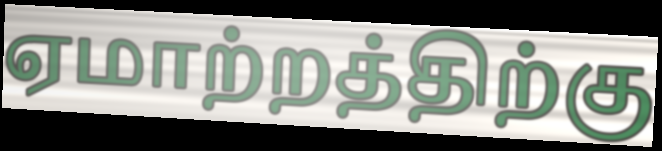
ஏமாற்றத்திற்கு